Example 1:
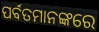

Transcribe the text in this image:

ପର୍ବତମାନଙ୍କରେ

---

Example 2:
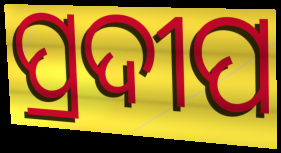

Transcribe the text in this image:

ପ୍ରଦୀପ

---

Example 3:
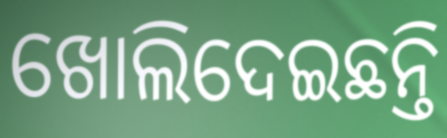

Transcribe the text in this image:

ଖୋଲିଦେଇଛନ୍ତି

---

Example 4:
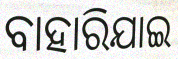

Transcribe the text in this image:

ବାହାରିଯାଇ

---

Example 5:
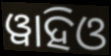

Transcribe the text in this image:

ୱାହିଓ